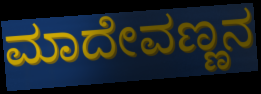
ಮಾದೇವಣ್ಣನ